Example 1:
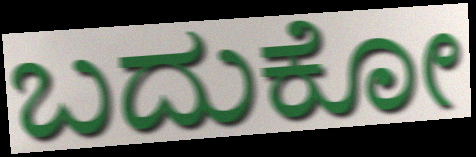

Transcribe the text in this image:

ಬದುಕೋ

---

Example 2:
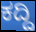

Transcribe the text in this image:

ಕದ್ದಿ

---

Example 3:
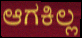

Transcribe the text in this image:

ಆಗಕಿಲ್ಲ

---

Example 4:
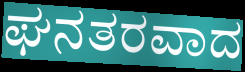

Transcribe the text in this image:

ಘನತರವಾದ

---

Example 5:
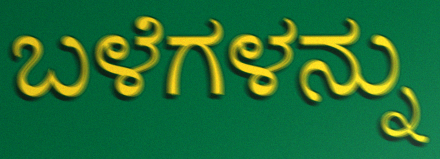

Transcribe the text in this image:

ಬಳೆಗಳನ್ನು